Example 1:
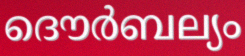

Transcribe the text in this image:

ദൌർബല്യം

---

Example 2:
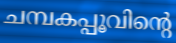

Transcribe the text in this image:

ചമ്പകപ്പൂവിന്റെ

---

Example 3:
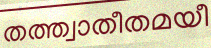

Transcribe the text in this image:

തത്ത്വാതീതമയീ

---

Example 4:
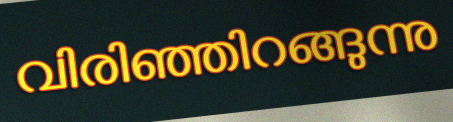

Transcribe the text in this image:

വിരിഞ്ഞിറങ്ങുന്നു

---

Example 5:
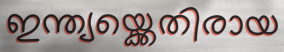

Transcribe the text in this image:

ഇന്ത്യയ്ക്കെതിരായ